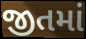
જીતમાં